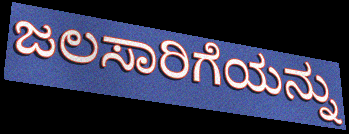
ಜಲಸಾರಿಗೆಯನ್ನು